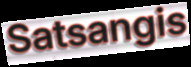
Satsangis